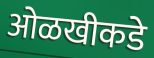
ओळखीकडे